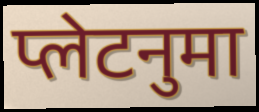
प्लेटनुमा